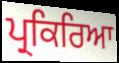
ਪ੍ਰਕਿਰਿਆ